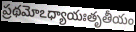
ప్రథమోఽధ్యాయఃతృతీయం